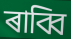
ৰাব্বি